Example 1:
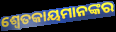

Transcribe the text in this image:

ଶ୍ବେତକାୟମାନଙ୍କର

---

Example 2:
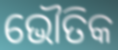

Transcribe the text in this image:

ଭୌତିକ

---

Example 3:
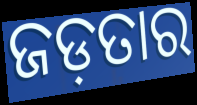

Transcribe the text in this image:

ଜଡ଼ତାର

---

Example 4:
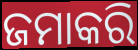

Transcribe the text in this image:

ଜମାକରି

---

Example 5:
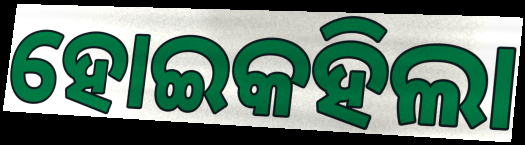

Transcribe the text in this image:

ହୋଇକହିଲା